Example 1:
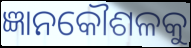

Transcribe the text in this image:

ଜ୍ଞାନକୌଶଳକୁ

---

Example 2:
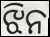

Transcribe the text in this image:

ଝିନ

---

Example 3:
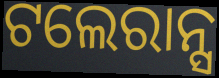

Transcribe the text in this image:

ଟଲେରାନ୍ସ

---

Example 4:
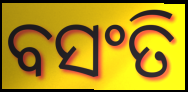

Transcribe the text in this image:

ବସଂତି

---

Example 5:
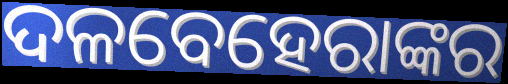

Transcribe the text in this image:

ଦଳବେହେରାଙ୍କର